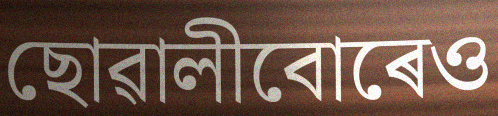
ছোৱালীবোৰেও